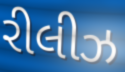
રીલીઝ